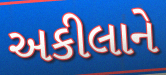
અકીલાને